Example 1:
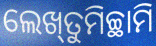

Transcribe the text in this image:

ଲେଖ୍‌ତୁମିଚ୍ଛାମି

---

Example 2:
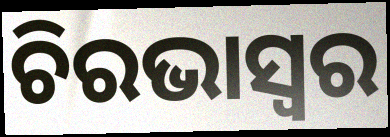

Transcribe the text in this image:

ଚିରଭାସ୍ଵର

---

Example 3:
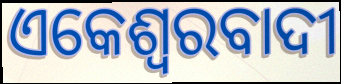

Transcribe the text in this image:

ଏକେଶ୍ଵରବାଦୀ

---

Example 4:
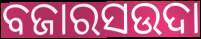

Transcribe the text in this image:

ବଜାରସଉଦା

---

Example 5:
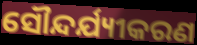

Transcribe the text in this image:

ସୌନ୍ଦର୍ଯ୍ୟୀକରଣ